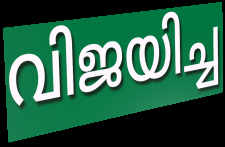
വിജയിച്ച